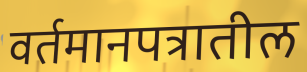
वर्तमानपत्रातील